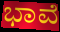
ಭಾವೆ